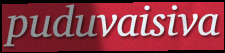
puduvaisiva